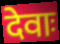
देवाः